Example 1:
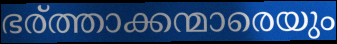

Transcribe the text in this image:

ഭര്ത്താക്കന്മാരെയും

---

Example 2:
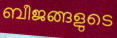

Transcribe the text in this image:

ബീജങ്ങളുടെ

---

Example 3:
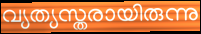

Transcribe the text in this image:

വ്യത്യസ്തരായിരുന്നു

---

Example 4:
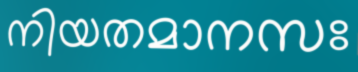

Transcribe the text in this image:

നിയതമാനസഃ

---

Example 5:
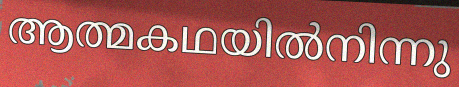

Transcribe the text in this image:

ആത്മകഥയിൽനിന്നു